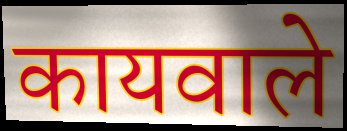
कायवाले